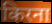
किरना